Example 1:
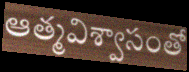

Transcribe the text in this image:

ఆత్మవిశ్వాసంతో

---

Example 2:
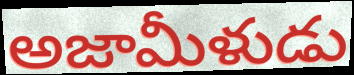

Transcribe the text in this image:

అజామీళుడు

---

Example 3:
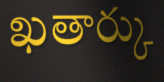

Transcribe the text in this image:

ఖతార్కు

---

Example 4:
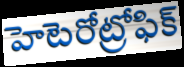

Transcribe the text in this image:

హెటెరోట్రోఫిక్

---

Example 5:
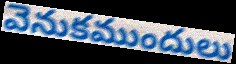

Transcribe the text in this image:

వెనుకముందులు